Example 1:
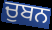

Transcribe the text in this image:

ਚੁਬਨ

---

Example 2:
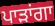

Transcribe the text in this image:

ਪਾੜਾਂਗਾ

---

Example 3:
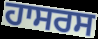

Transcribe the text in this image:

ਹਾਸਰਸ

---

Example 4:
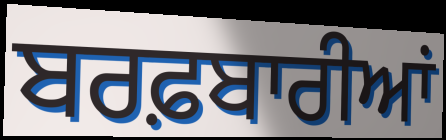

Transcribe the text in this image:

ਬਰਫ਼ਬਾਰੀਆਂ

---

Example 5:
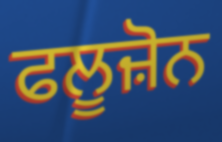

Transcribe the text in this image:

ਫਲੂਜ਼ੋਨ